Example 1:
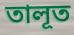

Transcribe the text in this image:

তালূত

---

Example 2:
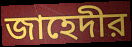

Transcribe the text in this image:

জাহেদীর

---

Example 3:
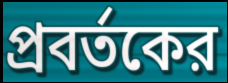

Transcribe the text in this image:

প্রবর্তকের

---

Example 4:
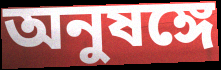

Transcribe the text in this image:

অনুষঙ্গে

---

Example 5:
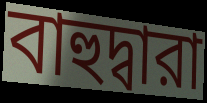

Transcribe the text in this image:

বাহুদ্বারা